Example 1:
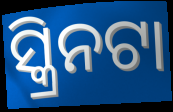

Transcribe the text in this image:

ସ୍କ୍ରିନଟା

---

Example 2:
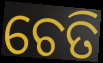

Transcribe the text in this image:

ଚେତି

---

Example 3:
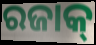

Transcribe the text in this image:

ରଜାକ୍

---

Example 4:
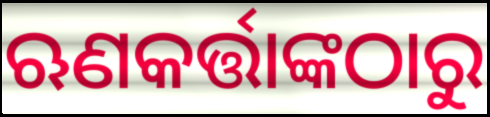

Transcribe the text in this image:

ଋଣକର୍ତ୍ତାଙ୍କଠାରୁ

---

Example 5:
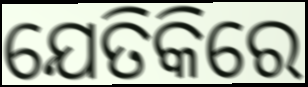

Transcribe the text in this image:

ଯେତିକିରେ